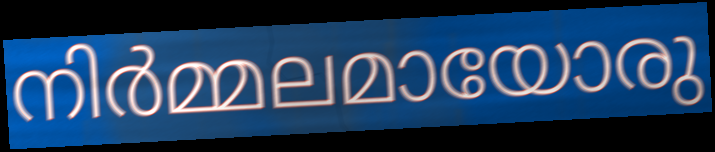
നിർമ്മലമായോരു